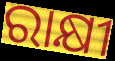
ରାକ୍ଷୀ